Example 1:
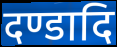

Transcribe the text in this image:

दण्डादि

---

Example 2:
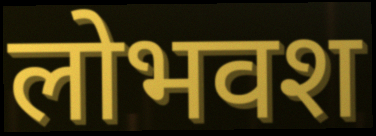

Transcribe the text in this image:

लोभवश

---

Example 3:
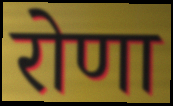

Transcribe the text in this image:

रोणा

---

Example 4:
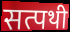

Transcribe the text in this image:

सत्पथी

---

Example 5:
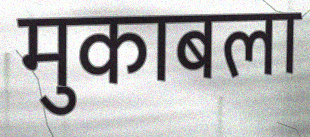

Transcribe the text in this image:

मुकाबला